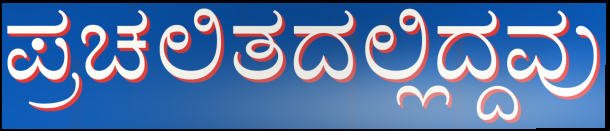
ಪ್ರಚಲಿತದಲ್ಲಿದ್ದವು